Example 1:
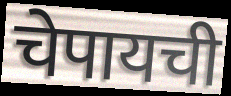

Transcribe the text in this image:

चेपायची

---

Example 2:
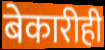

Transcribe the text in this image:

बेकारीही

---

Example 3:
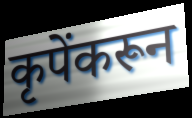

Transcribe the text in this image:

कृपेंकरून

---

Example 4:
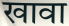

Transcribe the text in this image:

खावा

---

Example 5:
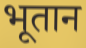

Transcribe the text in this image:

भूतान